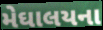
મેઘાલયના